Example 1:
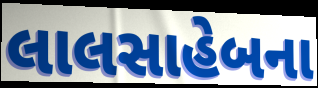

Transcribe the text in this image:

લાલસાહેબના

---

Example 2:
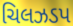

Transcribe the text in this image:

ચિલઝડપ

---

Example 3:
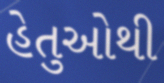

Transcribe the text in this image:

હેતુઓથી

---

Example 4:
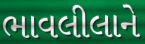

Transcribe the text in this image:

ભાવલીલાને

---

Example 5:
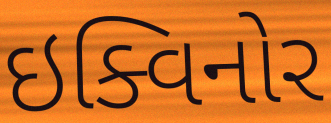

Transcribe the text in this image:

ઇક્વિનોર